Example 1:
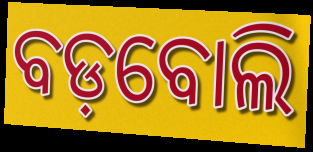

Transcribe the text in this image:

ବଡ଼ବୋଲି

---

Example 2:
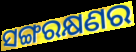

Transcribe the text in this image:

ସଙ୍ଗରକ୍ଷଣର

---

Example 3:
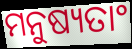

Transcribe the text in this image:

ମନୁଷ୍ୟତାଂ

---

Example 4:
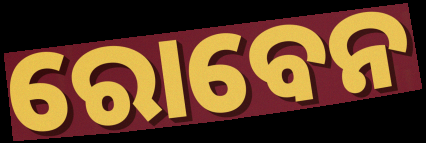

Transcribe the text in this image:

ରୋବେନ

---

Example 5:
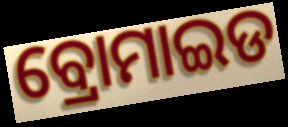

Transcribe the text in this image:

ବ୍ରୋମାଇଡ